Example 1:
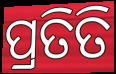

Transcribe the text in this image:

ପ୍ରତିତି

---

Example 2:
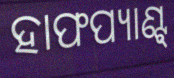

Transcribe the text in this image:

ହାଫପ୍ୟାଣ୍ଟ୍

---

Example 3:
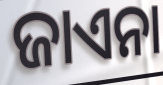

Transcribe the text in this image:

ଜାଏନା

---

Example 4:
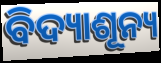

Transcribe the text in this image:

ବିଦ୍ୟାଶୂନ୍ୟ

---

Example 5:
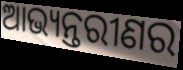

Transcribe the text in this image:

ଆଭ୍ୟନ୍ତରୀଣର